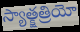
స్యాత్క్షత్రియో